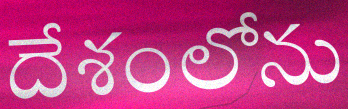
దేశంలోను